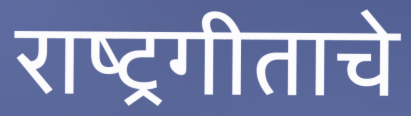
राष्ट्रगीताचे